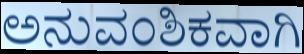
ಅನುವಂಶಿಕವಾಗಿ